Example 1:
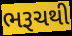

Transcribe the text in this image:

ભરૂચથી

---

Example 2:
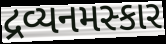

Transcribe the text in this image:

દ્રવ્યનમસ્કાર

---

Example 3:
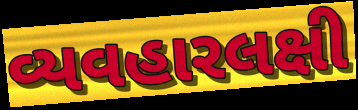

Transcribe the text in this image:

વ્યવહારલક્ષી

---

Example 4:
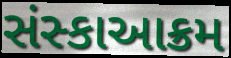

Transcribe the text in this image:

સંસ્કાઆક્રમ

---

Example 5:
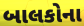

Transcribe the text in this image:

બાલકોના